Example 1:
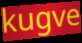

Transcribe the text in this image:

kugve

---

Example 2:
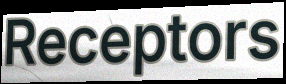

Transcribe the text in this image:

Receptors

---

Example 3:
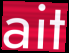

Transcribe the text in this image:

ait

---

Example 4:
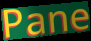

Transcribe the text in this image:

Pane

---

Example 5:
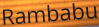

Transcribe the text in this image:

Rambabu